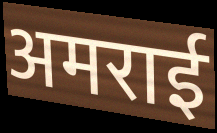
अमराई